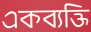
একব্যক্তি